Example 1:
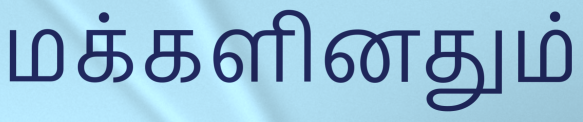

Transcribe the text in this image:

மக்களினதும்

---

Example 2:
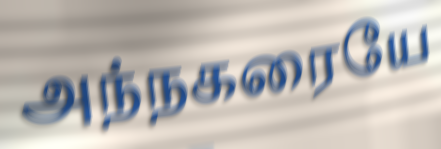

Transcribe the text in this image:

அந்நகரையே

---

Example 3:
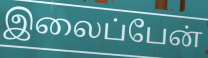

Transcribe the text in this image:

இலைப்பேன்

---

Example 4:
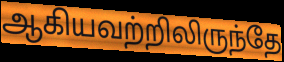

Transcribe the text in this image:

ஆகியவற்றிலிருந்தே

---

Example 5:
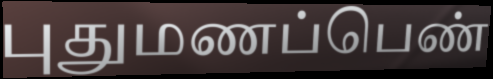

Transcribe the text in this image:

புதுமணப்பெண்